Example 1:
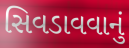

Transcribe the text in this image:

સિવડાવવાનું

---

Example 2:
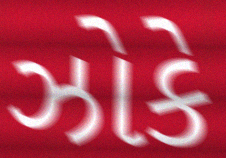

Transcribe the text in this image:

ઝોકે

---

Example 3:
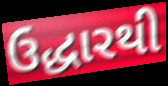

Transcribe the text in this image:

ઉદ્ધારથી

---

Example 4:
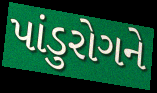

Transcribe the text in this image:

પાંડુરોગને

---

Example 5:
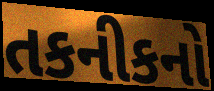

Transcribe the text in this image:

તકનીકનો